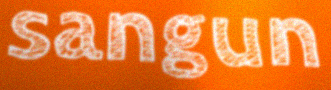
sangun